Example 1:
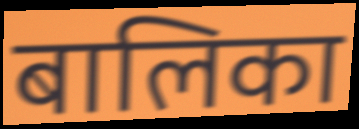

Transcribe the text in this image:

बालिका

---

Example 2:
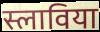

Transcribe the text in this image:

स्लाविया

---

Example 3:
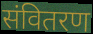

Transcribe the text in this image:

संवितरण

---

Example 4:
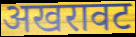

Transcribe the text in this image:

अखरावट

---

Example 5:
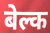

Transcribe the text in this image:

बेल्क